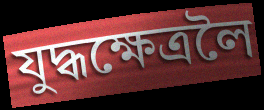
যুদ্ধক্ষেত্ৰলৈ